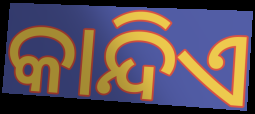
କାନ୍ଦିଏ